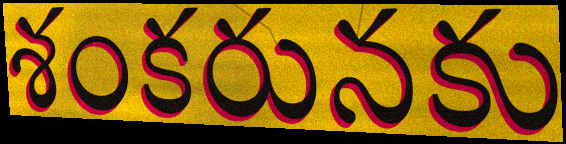
శంకరునకు